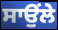
ਸਾਉਂਲੇ